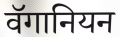
वॅगानियन